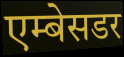
एम्‍बेसडर